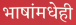
भाषांमधेही